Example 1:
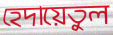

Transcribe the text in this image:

হেদায়েতুল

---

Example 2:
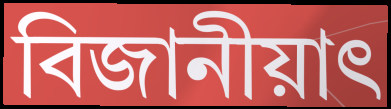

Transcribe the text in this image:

বিজানীয়াৎ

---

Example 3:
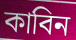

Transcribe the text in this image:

কাবিন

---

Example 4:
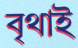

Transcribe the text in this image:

বৃথাই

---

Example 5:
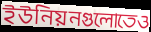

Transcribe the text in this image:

ইউনিয়নগুলোতেও